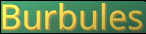
Burbules